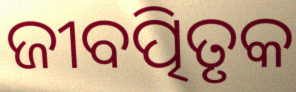
ଜୀବତ୍ପିତୃକ